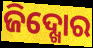
ଜିଦ୍ଖୋର